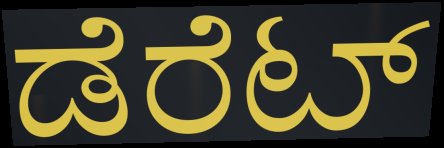
ಡೆರೆಟ್